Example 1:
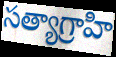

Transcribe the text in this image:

సత్యాగ్రాహి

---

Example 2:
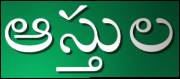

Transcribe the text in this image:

ఆస్తుల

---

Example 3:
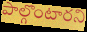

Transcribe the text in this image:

పాల్గొంటారని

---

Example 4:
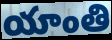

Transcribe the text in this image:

యాంతి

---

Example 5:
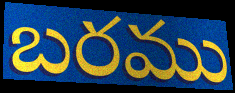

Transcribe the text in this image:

బరము